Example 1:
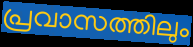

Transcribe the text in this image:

പ്രവാസത്തിലും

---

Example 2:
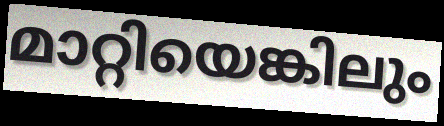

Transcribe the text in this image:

മാറ്റിയെങ്കിലും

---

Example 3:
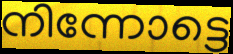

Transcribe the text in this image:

നിന്നോട്ടെ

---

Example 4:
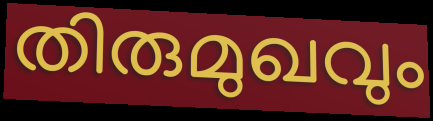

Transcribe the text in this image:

തിരുമുഖവും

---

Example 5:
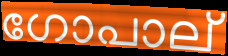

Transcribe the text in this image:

ഗോപാല്